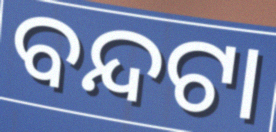
ବନ୍ଦଟା